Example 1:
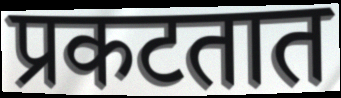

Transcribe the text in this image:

प्रकटतात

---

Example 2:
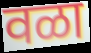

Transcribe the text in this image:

वळा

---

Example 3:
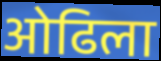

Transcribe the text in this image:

ओढिला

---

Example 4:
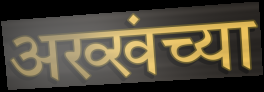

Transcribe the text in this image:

अख्खंच्या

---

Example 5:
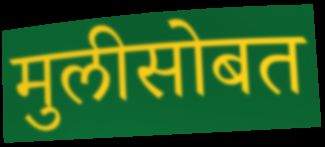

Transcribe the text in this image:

मुलीसोबत